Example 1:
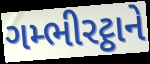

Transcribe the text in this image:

ગમ્ભીરટ્ઠાને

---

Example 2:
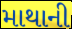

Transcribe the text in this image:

માથાની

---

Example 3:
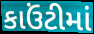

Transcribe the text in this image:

કાઉંટીમાં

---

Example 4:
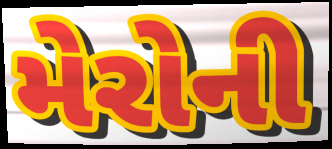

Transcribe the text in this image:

મેરોની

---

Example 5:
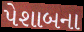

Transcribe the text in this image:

પેશાબના